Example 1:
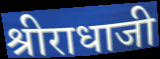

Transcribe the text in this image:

श्रीराधाजी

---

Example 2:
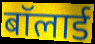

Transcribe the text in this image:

बॉलार्ड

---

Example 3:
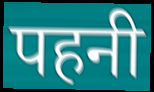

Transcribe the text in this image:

पहनी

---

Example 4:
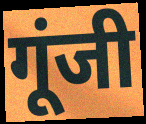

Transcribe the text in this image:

गूंजी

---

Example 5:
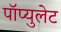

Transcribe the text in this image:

पॉप्युलेट